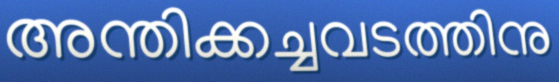
അന്തിക്കച്ചവടത്തിനു